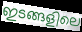
ഇടങ്ങളിലെ